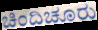
ಚಿಂದಿಚೂರು